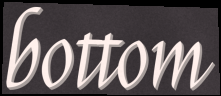
bottom